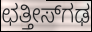
ಛತ್ತೀಸ್‍ಗಢ